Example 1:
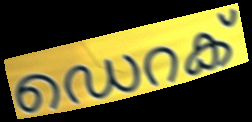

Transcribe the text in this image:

ഡെറക്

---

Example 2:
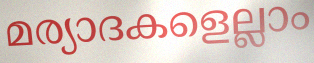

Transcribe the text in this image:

മര്യാദകളെല്ലാം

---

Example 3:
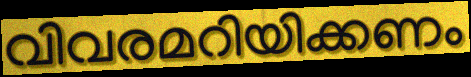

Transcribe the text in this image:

വിവരമറിയിക്കണം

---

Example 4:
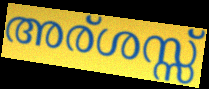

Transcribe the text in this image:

അര്ശസ്സ്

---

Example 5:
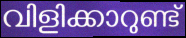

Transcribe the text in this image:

വിളിക്കാറുണ്ട്